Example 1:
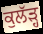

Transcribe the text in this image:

ਕੁਲੱੜ੍ਹ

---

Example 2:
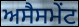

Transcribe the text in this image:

ਅਸੈਸਮੇਂਟ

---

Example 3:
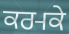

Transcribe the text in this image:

ਕਰ੍ਮਕੇ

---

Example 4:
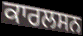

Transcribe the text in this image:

ਕਾਰਲਸਨ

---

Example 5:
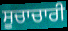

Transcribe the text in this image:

ਸੂਚਾਚਾਰੀ